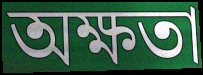
অক্ষতা